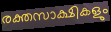
രക്തസാക്ഷികളും